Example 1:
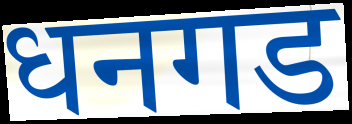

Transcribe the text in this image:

धनगड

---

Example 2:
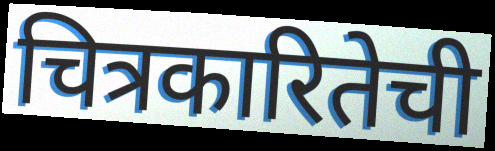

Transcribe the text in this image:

चित्रकारितेची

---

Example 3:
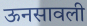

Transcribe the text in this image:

ऊनसावली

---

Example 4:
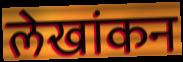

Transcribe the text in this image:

लेखांकन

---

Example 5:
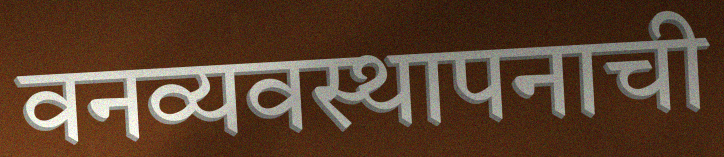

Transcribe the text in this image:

वनव्यवस्थापनाची